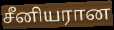
சீனியரான